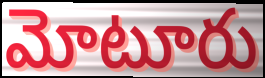
మోటూరు